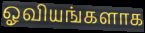
ஓவியங்களாக